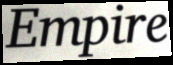
Empire